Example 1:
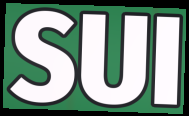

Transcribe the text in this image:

SUI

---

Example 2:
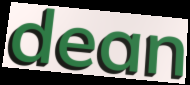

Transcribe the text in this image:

dean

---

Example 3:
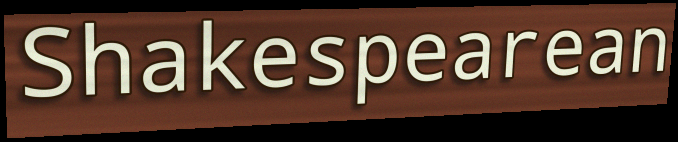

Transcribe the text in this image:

Shakespearean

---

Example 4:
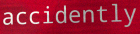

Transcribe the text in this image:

accidently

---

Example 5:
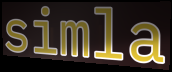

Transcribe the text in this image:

simla